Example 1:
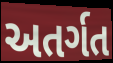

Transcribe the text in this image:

અતર્ગત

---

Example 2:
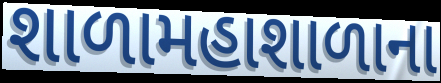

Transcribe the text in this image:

શાળામહાશાળાના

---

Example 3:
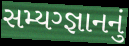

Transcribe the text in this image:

સમ્યગ્જ્ઞાનનું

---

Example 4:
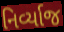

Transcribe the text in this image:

નિર્વ્યાજ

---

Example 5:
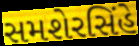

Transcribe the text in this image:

સમશેરસિંહે